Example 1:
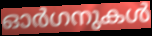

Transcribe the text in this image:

ഓർഗനുകൾ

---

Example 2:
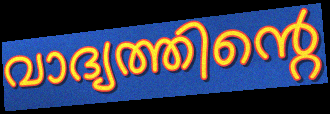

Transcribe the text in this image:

വാദ്യത്തിന്റെ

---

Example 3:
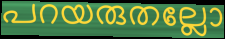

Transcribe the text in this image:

പറയരുതല്ലോ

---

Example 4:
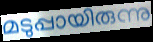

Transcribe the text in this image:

മടുപ്പായിരുന്നു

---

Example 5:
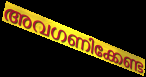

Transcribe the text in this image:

അവഗണിക്കേണ്ട